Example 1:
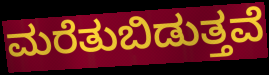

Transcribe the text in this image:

ಮರೆತುಬಿಡುತ್ತವೆ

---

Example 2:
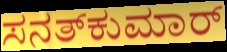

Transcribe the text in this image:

ಸನತ್‌ಕುಮಾರ್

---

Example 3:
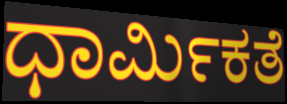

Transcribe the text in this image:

ಧಾರ್ಮಿಕತೆ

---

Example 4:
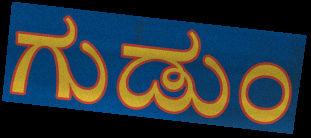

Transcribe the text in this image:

ಗುಡುಂ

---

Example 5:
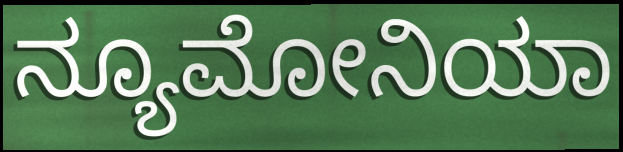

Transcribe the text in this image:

ನ್ಯೂಮೋನಿಯಾ